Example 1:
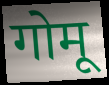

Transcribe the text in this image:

गोमू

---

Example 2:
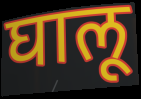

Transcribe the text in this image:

घालू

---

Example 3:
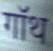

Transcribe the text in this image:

गॉथ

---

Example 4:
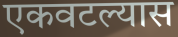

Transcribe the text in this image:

एकवटल्यास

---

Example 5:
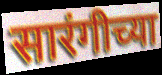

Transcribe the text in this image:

सारंगीच्या